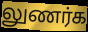
லுணர்க